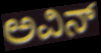
ಅವಿನ್